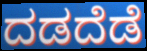
ದಡದೆಡೆ